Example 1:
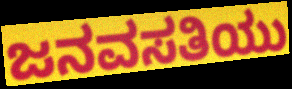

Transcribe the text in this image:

ಜನವಸತಿಯು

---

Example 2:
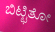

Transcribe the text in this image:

ಬಿಟ್ಟಿತೋ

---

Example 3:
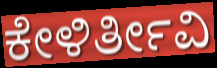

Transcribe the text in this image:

ಕೇಳಿರ್ತೀವಿ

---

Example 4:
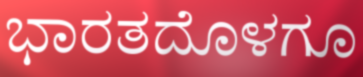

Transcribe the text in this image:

ಭಾರತದೊಳಗೂ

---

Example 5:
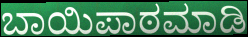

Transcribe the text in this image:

ಬಾಯಿಪಾಠಮಾಡಿ